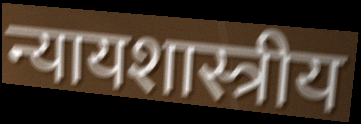
न्यायशास्त्रीय